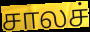
சாலச்